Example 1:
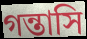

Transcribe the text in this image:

গন্তাসি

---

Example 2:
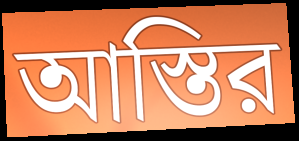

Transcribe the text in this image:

আস্তির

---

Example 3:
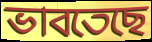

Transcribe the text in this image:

ভাবতেছে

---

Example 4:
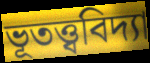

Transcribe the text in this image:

ভূতত্ত্ববিদ্যা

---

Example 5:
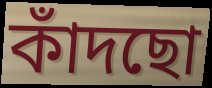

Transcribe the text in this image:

কাঁদছো